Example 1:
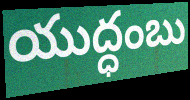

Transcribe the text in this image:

యుద్ధంబు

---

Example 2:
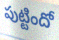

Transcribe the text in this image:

పుట్టిందో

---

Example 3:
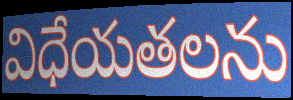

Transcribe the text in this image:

విధేయతలను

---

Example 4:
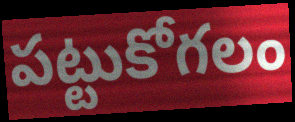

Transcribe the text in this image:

పట్టుకోగలం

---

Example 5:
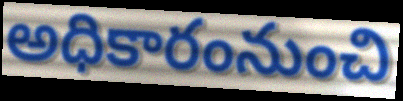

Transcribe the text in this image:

అధికారంనుంచి